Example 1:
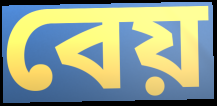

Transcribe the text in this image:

বেয়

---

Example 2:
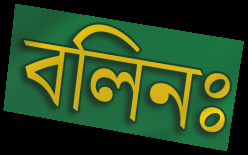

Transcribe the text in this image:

বলিনঃ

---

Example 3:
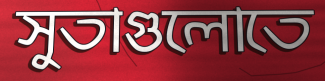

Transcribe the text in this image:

সুতাগুলোতে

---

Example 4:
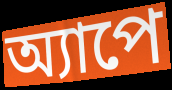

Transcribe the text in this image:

অ্যাপে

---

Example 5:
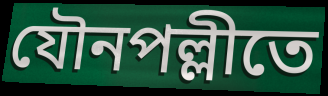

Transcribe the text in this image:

যৌনপল্লীতে